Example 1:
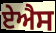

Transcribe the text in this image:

ਏਐਸ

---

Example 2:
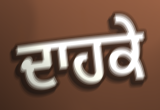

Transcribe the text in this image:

ਦਾਹਕੇ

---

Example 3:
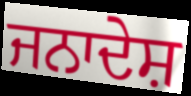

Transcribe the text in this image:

ਜਨਾਦੇਸ਼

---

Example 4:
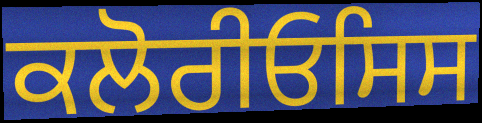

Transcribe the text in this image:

ਕਲੋਰੀਓਸਿਸ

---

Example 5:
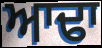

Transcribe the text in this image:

ਆਢਾ